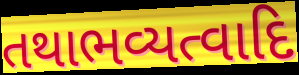
તથાભવ્યત્વાદિ